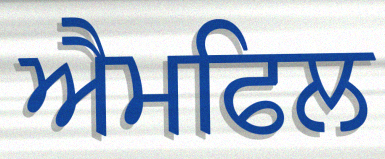
ਐਮਫਿਲ